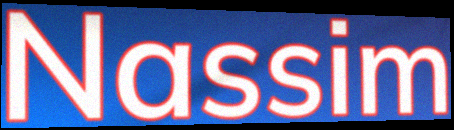
Nassim